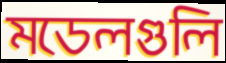
মডেলগুলি